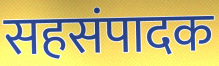
सहसंपादक